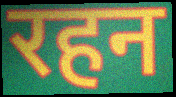
रहन